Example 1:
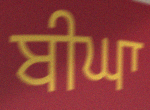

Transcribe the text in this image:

ਬੀਘਾ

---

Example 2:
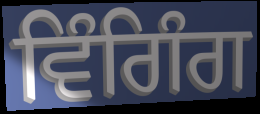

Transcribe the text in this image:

ਵਿੰਗਿੰਗ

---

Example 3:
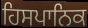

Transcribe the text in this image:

ਹਿਸਪਾਨਿਕ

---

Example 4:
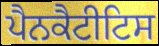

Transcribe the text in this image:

ਪੈਨਕੈਟੀਟਿਸ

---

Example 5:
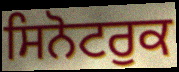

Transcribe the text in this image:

ਸਿਨੋਟਰੁਕ